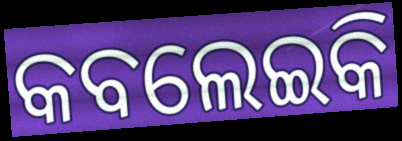
କବଲେଇକି